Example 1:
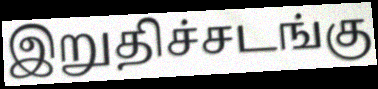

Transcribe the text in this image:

இறுதிச்சடங்கு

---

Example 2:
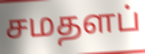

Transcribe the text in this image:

சமதளப்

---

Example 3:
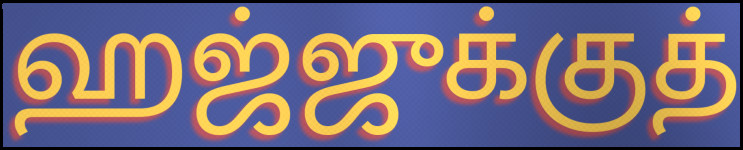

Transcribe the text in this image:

ஹஜ்ஜுக்குத்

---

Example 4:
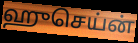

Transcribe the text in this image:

ஹுசெய்ன்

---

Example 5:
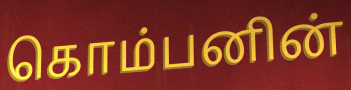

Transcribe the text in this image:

கொம்பனின்